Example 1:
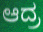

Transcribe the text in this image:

ಆದ್ರ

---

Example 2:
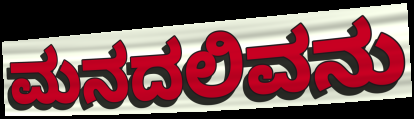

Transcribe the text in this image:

ಮನದಲಿವನು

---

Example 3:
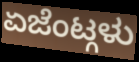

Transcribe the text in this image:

ಏಜೆಂಟ್ಗಳು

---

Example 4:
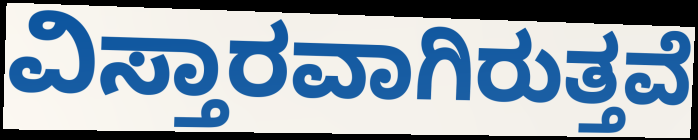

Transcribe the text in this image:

ವಿಸ್ತಾರವಾಗಿರುತ್ತವೆ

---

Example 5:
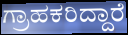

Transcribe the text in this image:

ಗ್ರಾಹಕರಿದ್ದಾರೆ